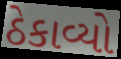
ઠેકાવ્યો